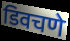
डिवचणे